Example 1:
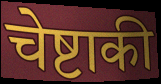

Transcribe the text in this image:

चेष्टाकी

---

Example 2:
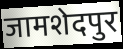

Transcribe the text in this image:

जामशेदपुर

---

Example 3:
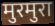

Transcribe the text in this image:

मुरमुरा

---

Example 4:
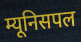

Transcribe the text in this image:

म्यूनिसपल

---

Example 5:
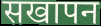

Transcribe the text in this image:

सखापन